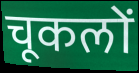
चूकलों